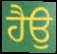
ਹੈਉ